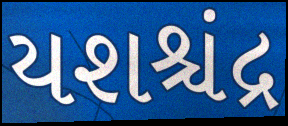
યશશ્ચંદ્ર